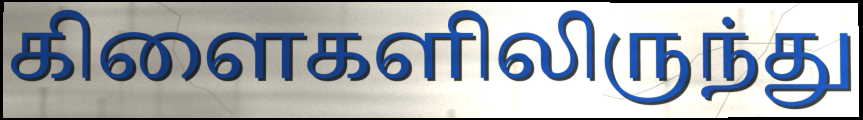
கிளைகளிலிருந்து